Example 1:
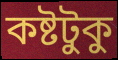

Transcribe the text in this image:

কষ্টটুকু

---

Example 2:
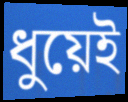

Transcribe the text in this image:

ধুয়েই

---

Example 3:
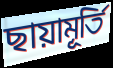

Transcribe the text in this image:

ছায়ামূর্তি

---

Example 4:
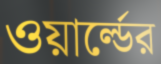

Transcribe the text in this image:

ওয়ার্ল্ডের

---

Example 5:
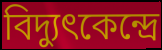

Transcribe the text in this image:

বিদ্যুৎকেন্দ্রে